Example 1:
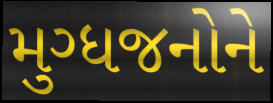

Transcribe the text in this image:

મુગ્ધજનોને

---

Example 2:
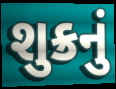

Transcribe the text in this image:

શુક્રનું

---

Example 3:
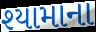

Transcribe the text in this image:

શ્યામાના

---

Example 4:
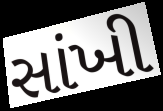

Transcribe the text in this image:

સાંખી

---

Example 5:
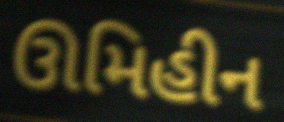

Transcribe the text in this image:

ઊમિહીન